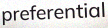
preferential